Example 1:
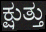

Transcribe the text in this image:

ಕ್ಷುತ್ತು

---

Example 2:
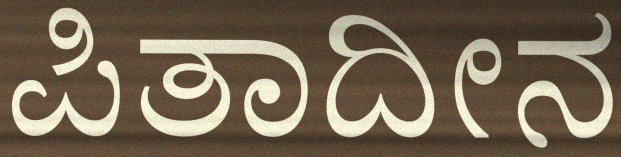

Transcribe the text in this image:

ಪಿತಾದೀನ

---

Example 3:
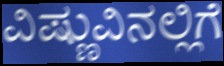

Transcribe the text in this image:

ವಿಷ್ಣುವಿನಲ್ಲಿಗೆ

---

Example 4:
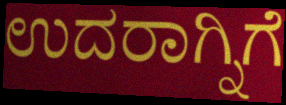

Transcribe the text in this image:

ಉದರಾಗ್ನಿಗೆ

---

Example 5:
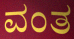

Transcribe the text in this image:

ವಂತ